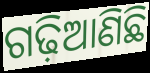
ଗଢ଼ିଆଣିଛି